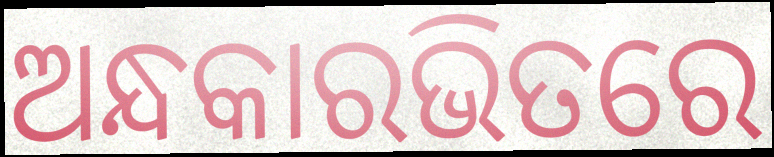
ଅନ୍ଧକାରଭିତରେ